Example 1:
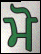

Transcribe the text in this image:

ਮੋ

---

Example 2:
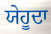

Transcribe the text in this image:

ਯੇਹੂਦਾ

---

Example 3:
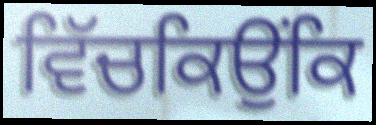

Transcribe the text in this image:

ਵਿੱਚਕਿਉਂਕਿ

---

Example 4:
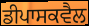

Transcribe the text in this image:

ਡੀਪਾਸਕਵੈਲ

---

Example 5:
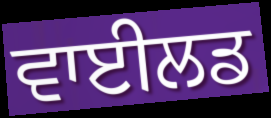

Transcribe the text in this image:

ਵਾਈਲਡ